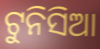
ଟୁନିସିଆ